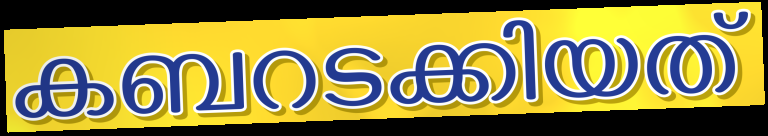
കബറടക്കിയത്